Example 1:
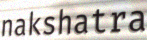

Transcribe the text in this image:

nakshatra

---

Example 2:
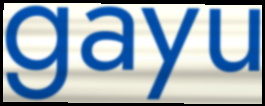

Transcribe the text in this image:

gayu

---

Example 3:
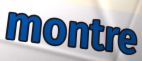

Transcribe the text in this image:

montre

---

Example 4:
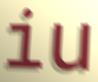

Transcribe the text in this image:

iu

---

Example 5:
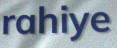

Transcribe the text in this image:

rahiye